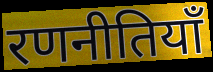
रणनीतियाँ